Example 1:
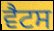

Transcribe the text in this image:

ਵੈਟਸ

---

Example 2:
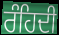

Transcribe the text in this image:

ਰੰਹਿਦੀ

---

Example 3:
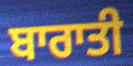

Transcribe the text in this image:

ਬਾਰਾਤੀ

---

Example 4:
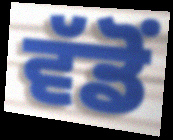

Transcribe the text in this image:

ਵੱਡੋਂ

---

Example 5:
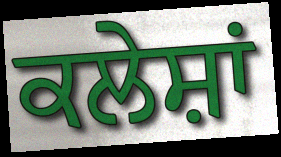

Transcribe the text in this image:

ਕਲੇਸ਼ਾਂ